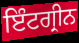
ਇੰਟਗ੍ਰੀਨ